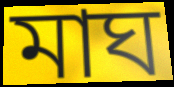
মাঘ